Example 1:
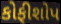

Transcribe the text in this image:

કોફીશોપ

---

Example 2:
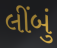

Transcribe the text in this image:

લીંબું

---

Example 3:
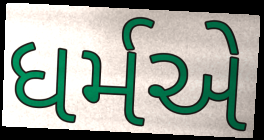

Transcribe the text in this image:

ધર્મએ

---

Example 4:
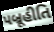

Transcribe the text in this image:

પબ્રૂહીતિ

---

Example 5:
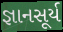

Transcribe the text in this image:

જ્ઞાનસૂર્ય